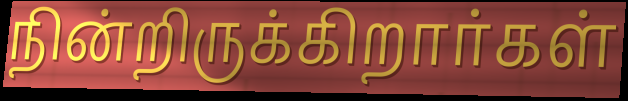
நின்றிருக்கிறார்கள்